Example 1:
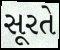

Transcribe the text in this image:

સૂરતે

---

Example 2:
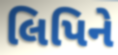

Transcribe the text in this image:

લિપિને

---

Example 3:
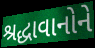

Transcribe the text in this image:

શ્રદ્ધાવાનોને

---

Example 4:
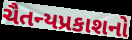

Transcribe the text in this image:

ચૈતન્યપ્રકાશનો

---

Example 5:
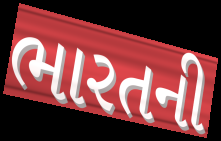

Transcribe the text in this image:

ભારતની